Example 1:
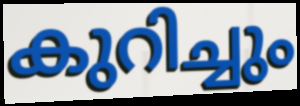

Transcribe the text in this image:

കുറിച്ചും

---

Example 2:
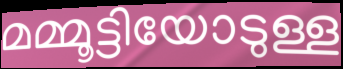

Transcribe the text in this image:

മമ്മൂട്ടിയോടുള്ള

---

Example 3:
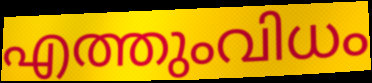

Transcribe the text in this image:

എത്തുംവിധം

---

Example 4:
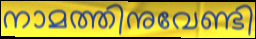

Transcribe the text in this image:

നാമത്തിനുവേണ്ടി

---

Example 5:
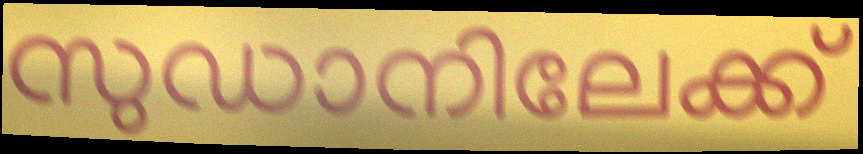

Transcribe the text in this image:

സുഡാനിലേക്ക്